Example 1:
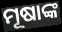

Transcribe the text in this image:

ମୂଷାଙ୍କ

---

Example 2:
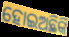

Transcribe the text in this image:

ହୋଇଅଛିକି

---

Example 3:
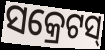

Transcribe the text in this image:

ସକ୍ରେଟସ୍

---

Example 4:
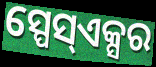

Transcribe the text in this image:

ସ୍ପେସ୍ଏକ୍ସର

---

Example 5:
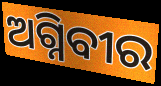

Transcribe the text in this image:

ଅଗ୍ନିବୀର